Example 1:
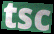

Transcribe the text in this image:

tsc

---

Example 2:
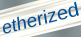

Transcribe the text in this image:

etherized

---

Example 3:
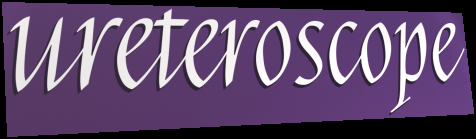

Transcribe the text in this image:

ureteroscope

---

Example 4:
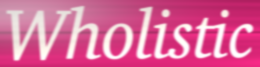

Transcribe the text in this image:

Wholistic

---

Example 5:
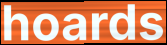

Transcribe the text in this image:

hoards